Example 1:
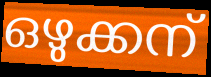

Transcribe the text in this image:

ഒഴുക്കന്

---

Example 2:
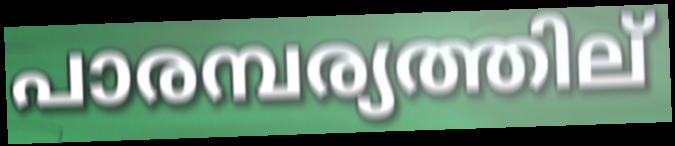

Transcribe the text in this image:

പാരമ്പര്യത്തില്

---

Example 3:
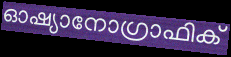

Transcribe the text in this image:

ഓഷ്യാനോഗ്രാഫിക്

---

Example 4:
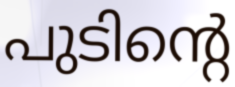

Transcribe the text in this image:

പുടിന്റെ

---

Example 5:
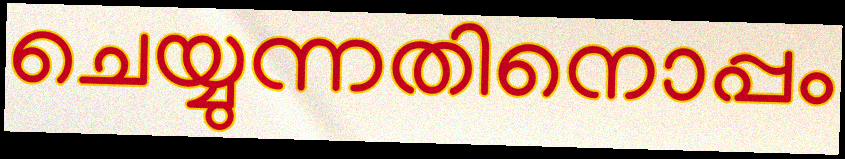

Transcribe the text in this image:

ചെയ്യുന്നതിനൊപ്പം